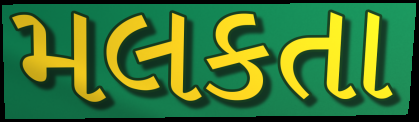
મલકતા